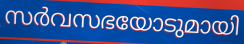
സർവസഭയോടുമായി